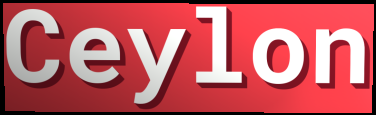
Ceylon